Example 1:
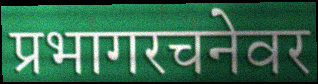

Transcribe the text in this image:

प्रभागरचनेवर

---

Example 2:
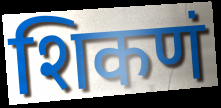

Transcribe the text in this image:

शिकणं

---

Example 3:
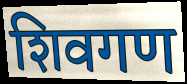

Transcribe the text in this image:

शिवगण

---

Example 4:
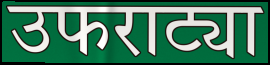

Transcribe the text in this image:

उफराट्या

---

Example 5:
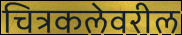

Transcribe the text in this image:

चित्रकलेवरील